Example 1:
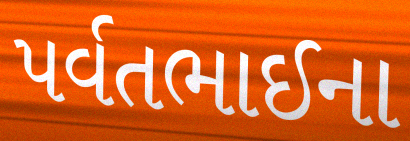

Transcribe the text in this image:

પર્વતભાઈના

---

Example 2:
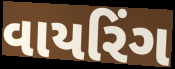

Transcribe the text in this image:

વાયરિંગ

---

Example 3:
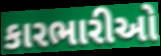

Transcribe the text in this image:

કારભારીઓ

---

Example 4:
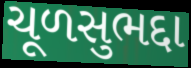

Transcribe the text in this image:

ચૂળસુભદ્દા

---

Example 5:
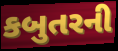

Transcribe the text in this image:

કબુતરની